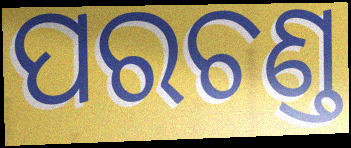
ପରଚଣ୍ଡ